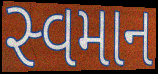
સ્વમાન